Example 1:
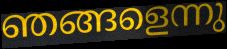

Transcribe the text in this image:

ഞങ്ങളെന്നു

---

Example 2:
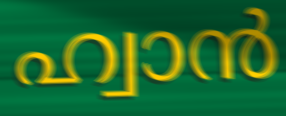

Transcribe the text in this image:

ഹ്വാൻ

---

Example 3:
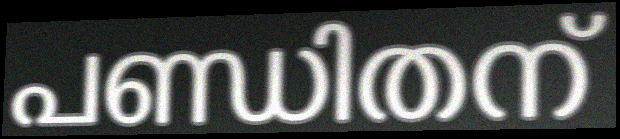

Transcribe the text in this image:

പണ്ഡിതന്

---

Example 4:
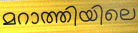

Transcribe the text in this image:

മറാത്തിയിലെ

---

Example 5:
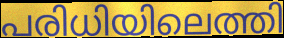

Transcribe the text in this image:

പരിധിയിലെത്തി